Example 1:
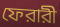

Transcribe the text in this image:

ফেরারী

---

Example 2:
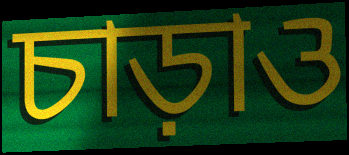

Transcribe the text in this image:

চাড়াও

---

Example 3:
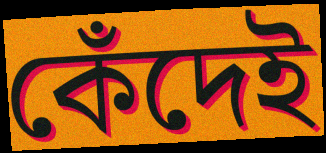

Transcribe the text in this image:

কেঁদেই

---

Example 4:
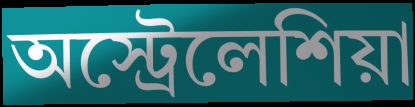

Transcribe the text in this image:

অস্ট্রেলেশিয়া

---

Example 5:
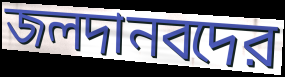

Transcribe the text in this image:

জলদানবদের